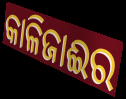
କାଳିଜାଈର